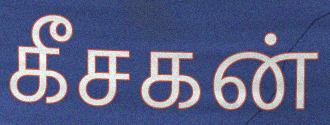
கீசகன்